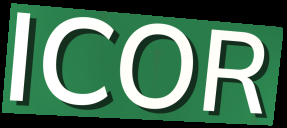
ICOR